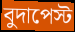
বুদাপেস্ট